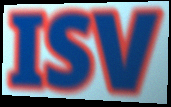
ISV